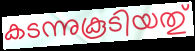
കടന്നുകൂടിയതു്